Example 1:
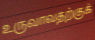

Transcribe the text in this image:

உருவாவதற்குக்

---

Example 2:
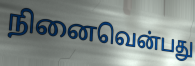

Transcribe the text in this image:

நினைவென்பது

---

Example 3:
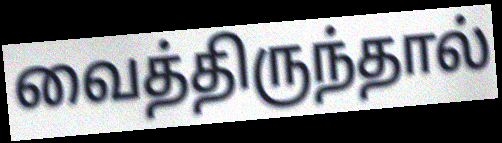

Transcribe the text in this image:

வைத்திருந்தால்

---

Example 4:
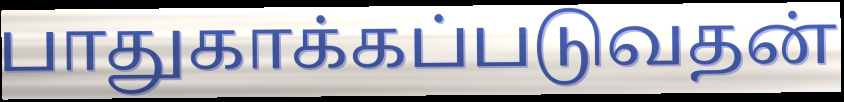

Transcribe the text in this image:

பாதுகாக்கப்படுவதன்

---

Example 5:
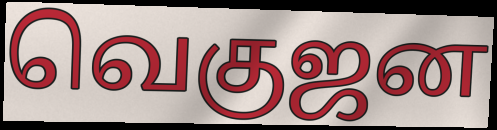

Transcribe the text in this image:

வெகுஜன